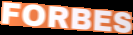
FORBES